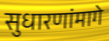
सुधारणांमागे